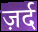
ज़र्द